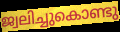
ജ്വലിച്ചുകൊണ്ടു